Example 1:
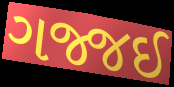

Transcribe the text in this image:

ગજ્જઈ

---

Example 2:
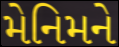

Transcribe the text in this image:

મેનિમને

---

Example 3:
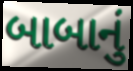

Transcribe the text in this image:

બાબાનું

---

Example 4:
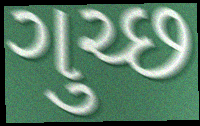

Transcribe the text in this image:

ગુચ્છ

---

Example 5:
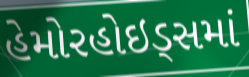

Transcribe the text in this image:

હેમોરહોઇડ્સમાં